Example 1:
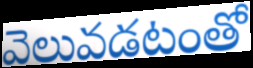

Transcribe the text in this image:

వెలువడటంతో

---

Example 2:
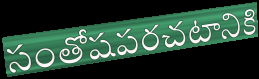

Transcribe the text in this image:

సంతోషపరచటానికి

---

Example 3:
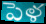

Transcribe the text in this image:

పెళ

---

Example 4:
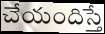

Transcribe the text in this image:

చేయందిస్తే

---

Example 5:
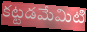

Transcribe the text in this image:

కట్టడమేమిటి